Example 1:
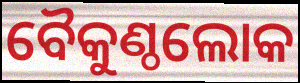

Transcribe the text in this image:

ବୈକୁଣ୍ଠଲୋକ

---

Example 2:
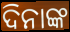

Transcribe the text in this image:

ଦିନାଙ୍କ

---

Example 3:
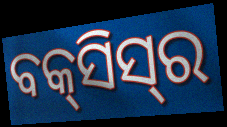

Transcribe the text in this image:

ବକ୍‌ସିସ୍‌ର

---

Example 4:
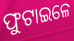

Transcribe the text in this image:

ଫୁଟାଇଳେ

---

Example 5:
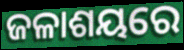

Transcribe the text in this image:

ଜଳାଶୟରେ